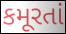
કમૂરતાં